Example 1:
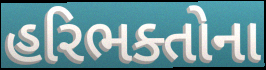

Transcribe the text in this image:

હરિભક્તોના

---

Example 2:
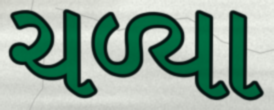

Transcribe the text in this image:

ચળ્યા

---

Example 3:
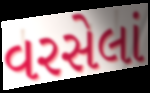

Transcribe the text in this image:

વરસેલાં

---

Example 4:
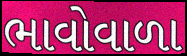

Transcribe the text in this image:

ભાવોવાળા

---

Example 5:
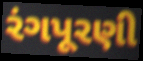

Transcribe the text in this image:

રંગપૂરણી